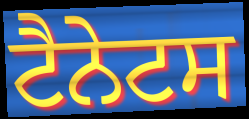
ਟੈਨੇਟਸ